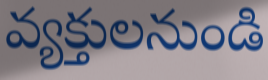
వ్యక్తులనుండి